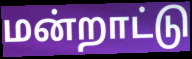
மன்றாட்டு